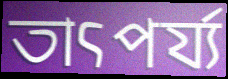
তাৎপৰ্য্য